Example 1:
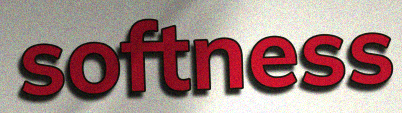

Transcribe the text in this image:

softness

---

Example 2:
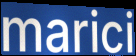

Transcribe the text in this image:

marici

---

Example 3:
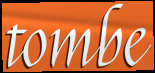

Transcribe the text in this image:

tombe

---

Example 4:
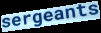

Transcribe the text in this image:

sergeants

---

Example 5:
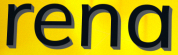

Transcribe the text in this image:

rena